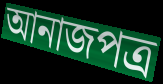
আনাজপত্র